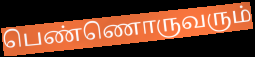
பெண்ணொருவரும்